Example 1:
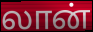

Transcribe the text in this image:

லான்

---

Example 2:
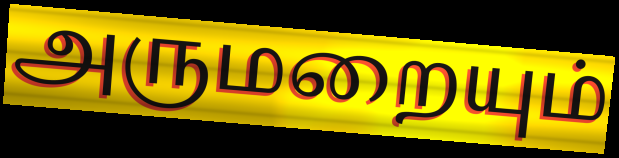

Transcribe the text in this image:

அருமறையும்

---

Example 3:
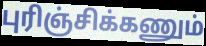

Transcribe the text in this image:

புரிஞ்சிக்கணும்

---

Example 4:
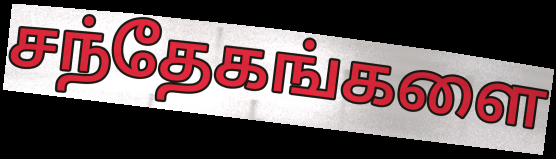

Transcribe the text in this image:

சந்தேகங்களை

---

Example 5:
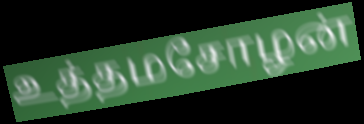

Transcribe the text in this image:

உத்தமசோழன்